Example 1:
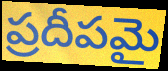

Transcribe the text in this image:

ప్రదీపమై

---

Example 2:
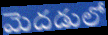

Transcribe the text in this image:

మెదడులో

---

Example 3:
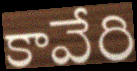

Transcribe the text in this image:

కావేరి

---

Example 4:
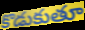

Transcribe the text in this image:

కొడుకుతూ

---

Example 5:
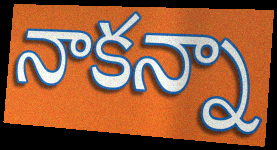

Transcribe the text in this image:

నాకన్నా